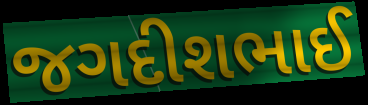
જગદીશભાઈ